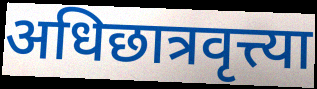
अधिछात्रवृत्त्या